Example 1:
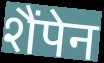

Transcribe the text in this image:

शैंपेन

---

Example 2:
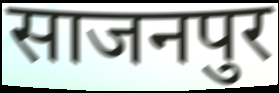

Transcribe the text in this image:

साजनपुर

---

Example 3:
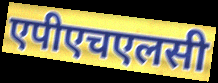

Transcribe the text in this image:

एपीएचएलसी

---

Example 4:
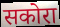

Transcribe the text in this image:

सकोरा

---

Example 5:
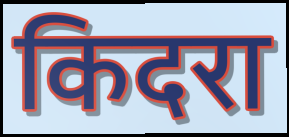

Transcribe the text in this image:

किदरा